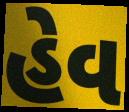
હેવ